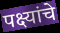
पक्ष्यांचे